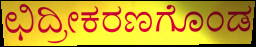
ಛಿದ್ರೀಕರಣಗೊಂಡ